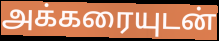
அக்கரையுடன்